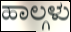
ಹಾಲ್ಗಳು